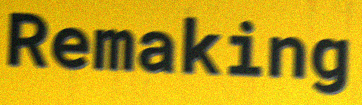
Remaking